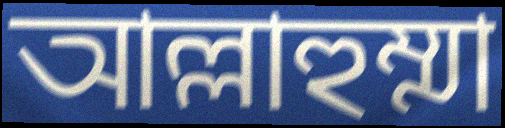
আল্লাহুম্মা